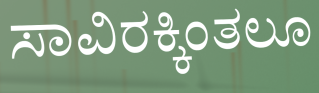
ಸಾವಿರಕ್ಕಿಂತಲೂ